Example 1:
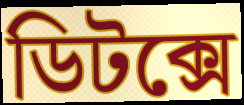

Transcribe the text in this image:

ডিটক্সে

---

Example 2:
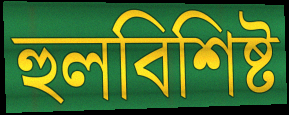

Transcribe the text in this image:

হুলবিশিষ্ট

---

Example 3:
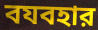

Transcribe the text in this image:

বযবহার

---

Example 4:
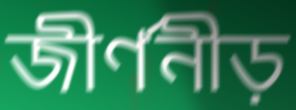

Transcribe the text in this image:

জীর্ণনীড়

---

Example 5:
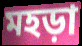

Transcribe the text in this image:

মহড়া